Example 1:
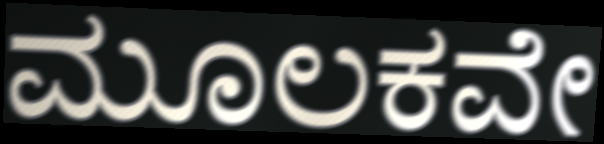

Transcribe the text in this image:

ಮೂಲಕವೇ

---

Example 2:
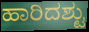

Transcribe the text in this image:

ಹಾರಿದಶ್ಟು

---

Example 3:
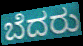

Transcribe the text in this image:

ಬೆದರು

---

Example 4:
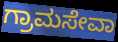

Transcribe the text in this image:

ಗ್ರಾಮಸೇವಾ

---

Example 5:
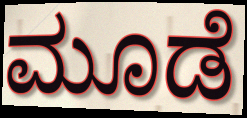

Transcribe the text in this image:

ಮೂಡೆ